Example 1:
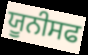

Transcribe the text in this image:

ਯੂਨੀਸਫ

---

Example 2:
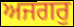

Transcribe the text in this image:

ਅਜਗਰੁ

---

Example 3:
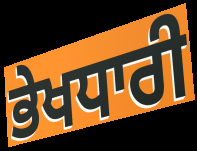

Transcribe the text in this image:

ਭੇਖਧਾਰੀ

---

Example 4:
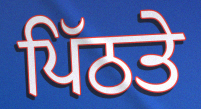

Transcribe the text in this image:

ਪਿੱਠਤੇ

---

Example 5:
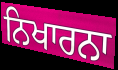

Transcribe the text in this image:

ਨਿਖਾਰਨਾ